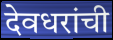
देवधरांची